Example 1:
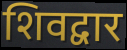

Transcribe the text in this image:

शिवद्वार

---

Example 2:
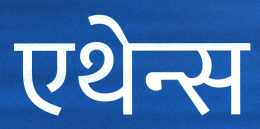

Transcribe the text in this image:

एथेन्स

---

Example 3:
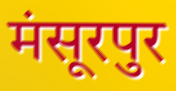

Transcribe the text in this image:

मंसूरपुर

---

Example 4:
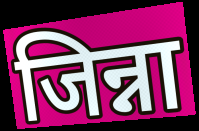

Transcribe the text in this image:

जिन्ना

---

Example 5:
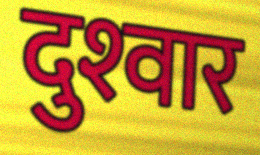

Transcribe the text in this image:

दुश्‍वार